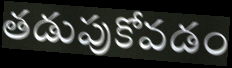
తడుపుకోవడం